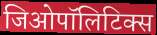
जिओपॉलिटिक्स